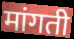
मांगती